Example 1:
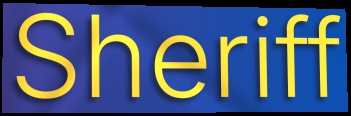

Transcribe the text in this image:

Sheriff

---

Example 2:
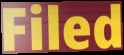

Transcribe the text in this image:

Filed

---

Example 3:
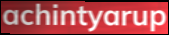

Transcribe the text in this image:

achintyarup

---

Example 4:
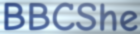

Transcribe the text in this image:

BBCShe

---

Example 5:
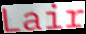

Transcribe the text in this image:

Lair